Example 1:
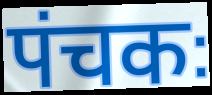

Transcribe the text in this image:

पंचकः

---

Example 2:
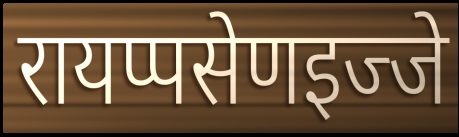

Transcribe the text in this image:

रायप्पसेणइज्जे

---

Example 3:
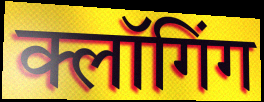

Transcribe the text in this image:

क्लॉगिंग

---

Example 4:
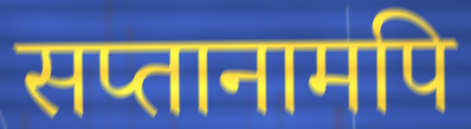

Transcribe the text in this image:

सप्तानामपि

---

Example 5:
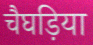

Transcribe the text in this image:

चैघड़िया